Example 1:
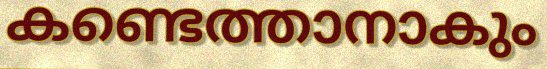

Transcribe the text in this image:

കണ്ടെത്താനാകും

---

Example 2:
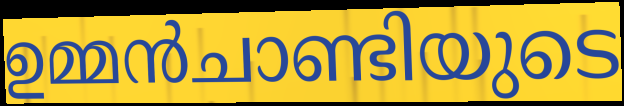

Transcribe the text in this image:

ഉമ്മൻചാണ്ടിയുടെ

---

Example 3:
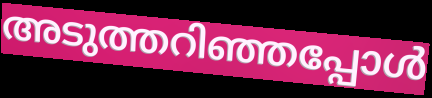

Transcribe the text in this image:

അടുത്തറിഞ്ഞപ്പോൾ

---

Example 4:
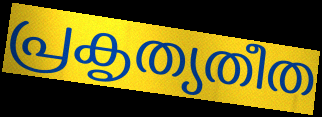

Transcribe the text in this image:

പ്രകൃത്യതീത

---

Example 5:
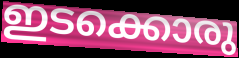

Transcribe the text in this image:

ഇടക്കൊരു